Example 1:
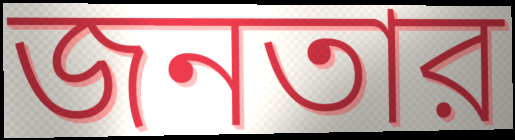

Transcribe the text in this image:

জনতার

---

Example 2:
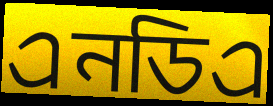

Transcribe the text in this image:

এনডিএ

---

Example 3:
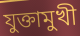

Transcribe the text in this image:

যুক্তামুখী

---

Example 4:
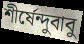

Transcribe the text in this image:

শীর্ষেন্দুবাবু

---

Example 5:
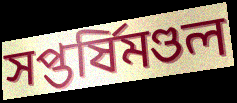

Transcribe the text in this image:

সপ্তর্ষিমণ্ডল